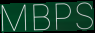
MBPS